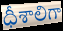
ధీశాలిగా